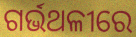
ଗର୍ଭଥଳୀରେ